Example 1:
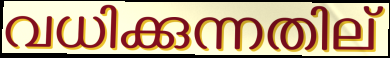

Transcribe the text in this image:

വധിക്കുന്നതില്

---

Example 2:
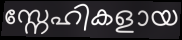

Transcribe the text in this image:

സ്നേഹികളായ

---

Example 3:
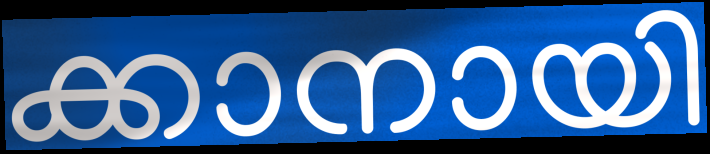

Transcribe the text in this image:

ക്കാനായി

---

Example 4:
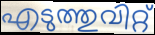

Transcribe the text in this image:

എടുത്തുവിറ്റ്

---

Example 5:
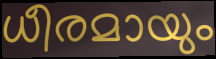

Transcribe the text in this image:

ധീരമായും